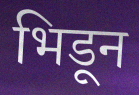
भिडून